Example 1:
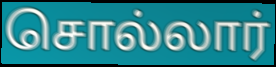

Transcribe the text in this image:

சொல்லார்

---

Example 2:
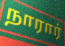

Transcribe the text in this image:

நாரார்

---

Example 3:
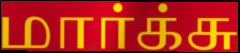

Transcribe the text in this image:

மார்க்சு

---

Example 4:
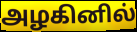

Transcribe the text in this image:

அழகினில்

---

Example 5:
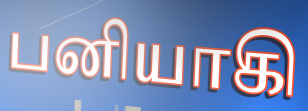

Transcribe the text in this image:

பனியாகி